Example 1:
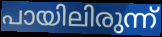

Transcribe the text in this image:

പായിലിരുന്ന്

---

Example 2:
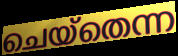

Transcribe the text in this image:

ചെയ്‌തെന്ന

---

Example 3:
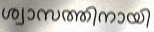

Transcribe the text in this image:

ശ്വാസത്തിനായി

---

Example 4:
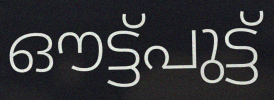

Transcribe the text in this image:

ഔട്ട്പുട്ട്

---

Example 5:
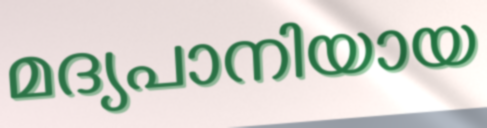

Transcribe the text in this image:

മദ്യപാനിയായ